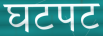
घटपट